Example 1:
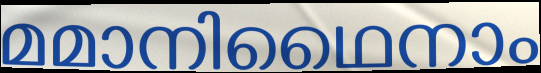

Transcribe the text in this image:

മമാനിഥൈനാം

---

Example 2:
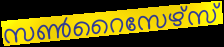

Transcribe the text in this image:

സൺറൈസേഴ്സ്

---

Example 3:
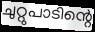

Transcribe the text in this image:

ചുറ്റുപാടിന്റെ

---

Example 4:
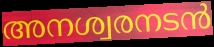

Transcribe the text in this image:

അനശ്വരനടൻ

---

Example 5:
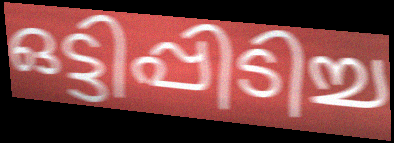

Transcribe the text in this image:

ഒട്ടിപ്പിടിച്ച